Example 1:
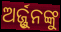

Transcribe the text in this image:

ଅର୍ଜ୍ଜୁନଙ୍କୁ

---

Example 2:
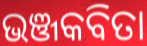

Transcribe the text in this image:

ଭଞ୍ଜକବିତା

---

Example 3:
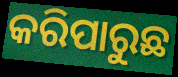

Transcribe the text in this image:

କରିପାରୁଛ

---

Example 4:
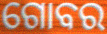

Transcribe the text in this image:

ଗୋବର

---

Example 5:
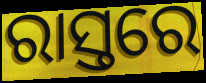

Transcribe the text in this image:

ରାସ୍ତରେ